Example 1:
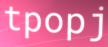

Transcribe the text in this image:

tpopj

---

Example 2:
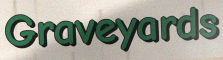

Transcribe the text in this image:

Graveyards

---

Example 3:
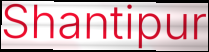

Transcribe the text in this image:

Shantipur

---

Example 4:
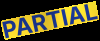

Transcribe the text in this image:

PARTIAL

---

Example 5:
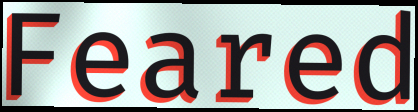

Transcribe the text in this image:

Feared